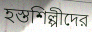
হস্তশিল্পীদের